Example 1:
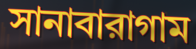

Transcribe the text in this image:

সানাবারাগাম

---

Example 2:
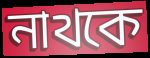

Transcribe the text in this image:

নাথকে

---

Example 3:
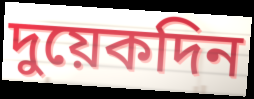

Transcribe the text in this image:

দুয়েকদিন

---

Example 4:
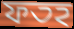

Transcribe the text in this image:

ফতহ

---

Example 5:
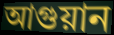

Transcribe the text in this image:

আগুয়ান